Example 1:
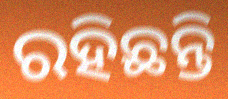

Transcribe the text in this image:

ରହିଛନ୍ତି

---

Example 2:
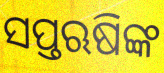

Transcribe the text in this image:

ସପ୍ତଋଷିଙ୍କ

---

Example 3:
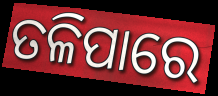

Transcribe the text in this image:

ତଳିପାରେ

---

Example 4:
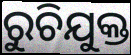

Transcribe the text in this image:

ରୁଚିଯୁକ୍ତ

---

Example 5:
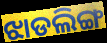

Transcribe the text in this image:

ଝାଡଲିଙ୍ଗ